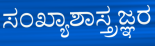
ಸಂಖ್ಯಾಶಾಸ್ತ್ರಜ್ಞರ